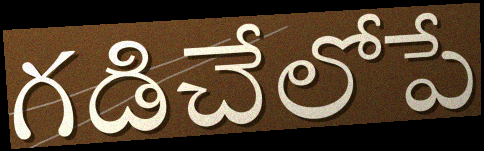
గడిచేలోపే